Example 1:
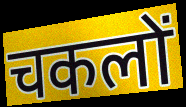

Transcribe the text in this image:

चकलों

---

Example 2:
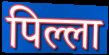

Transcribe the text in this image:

पिल्ला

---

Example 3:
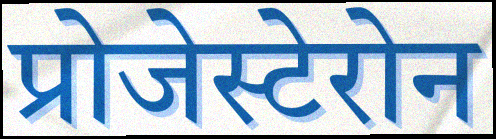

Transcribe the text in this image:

प्रोजेस्टेरोन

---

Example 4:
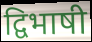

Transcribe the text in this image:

द्विभाषी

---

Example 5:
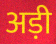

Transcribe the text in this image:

अड़ी